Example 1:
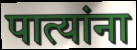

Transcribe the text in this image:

पात्यांना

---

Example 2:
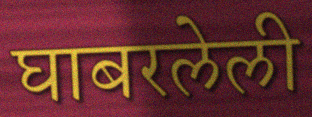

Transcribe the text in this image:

घाबरलेली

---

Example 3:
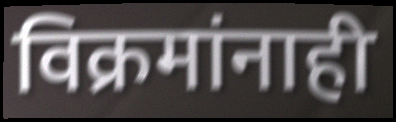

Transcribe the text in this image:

विक्रमांनाही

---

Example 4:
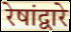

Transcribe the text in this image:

रेषांद्वारे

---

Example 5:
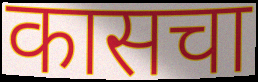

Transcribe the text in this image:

कासचा